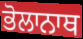
ਭੋਲਾਨਾਥ